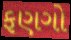
ફણગો